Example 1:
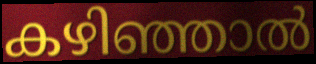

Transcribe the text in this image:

കഴിഞ്ഞാൽ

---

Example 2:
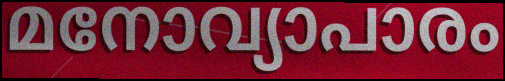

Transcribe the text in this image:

മനോവ്യാപാരം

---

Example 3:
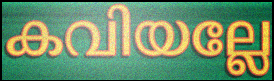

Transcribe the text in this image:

കവിയല്ലേ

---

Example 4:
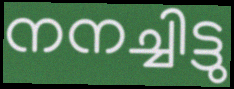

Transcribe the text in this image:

നനച്ചിട്ടു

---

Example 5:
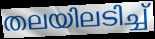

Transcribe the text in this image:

തലയിലടിച്ച്